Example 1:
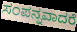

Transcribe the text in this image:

ಸಂಪನ್ನವಾದರೆ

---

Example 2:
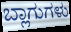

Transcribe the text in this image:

ಬ್ಲಾಗುಗಳು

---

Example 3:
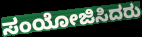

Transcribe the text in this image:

ಸಂಯೋಜಿಸಿದರು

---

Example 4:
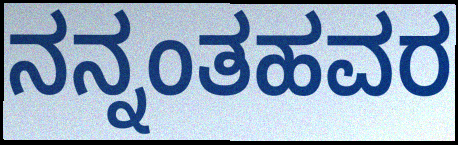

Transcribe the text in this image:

ನನ್ನಂತಹವರ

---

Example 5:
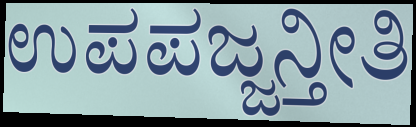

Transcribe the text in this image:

ಉಪಪಜ್ಜನ್ತೀತಿ